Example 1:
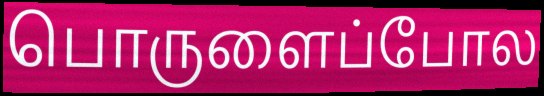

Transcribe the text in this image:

பொருளைப்போல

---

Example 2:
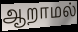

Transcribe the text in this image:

ஆறாமல்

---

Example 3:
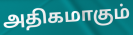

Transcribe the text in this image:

அதிகமாகும்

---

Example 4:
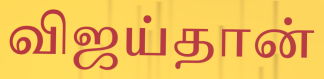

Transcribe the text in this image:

விஜய்தான்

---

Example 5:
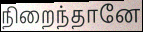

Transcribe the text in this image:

நிறைந்தானே